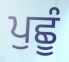
ਪੁਛੂੰ